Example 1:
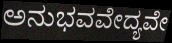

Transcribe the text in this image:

ಅನುಭವವೇದ್ಯವೇ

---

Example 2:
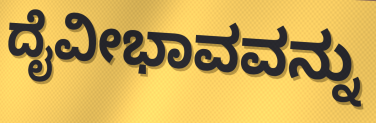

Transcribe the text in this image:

ದೈವೀಭಾವವನ್ನು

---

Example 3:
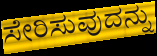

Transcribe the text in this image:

ಸೇರಿಸುವುದನ್ನು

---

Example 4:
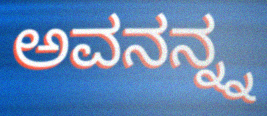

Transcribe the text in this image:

ಅವನನ್ನ್ನ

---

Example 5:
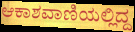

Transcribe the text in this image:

ಆಕಾಶವಾಣಿಯಲ್ಲಿದ್ದ